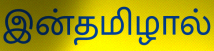
இன்தமிழால்